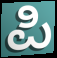
ಪಿ